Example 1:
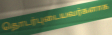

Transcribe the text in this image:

தொடர்புடையவர்களாக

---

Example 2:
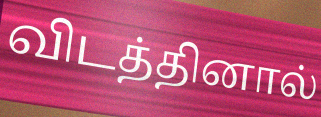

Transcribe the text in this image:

விடத்தினால்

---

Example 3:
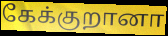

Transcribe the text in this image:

கேக்குறானா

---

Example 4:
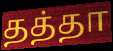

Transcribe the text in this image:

தத்தா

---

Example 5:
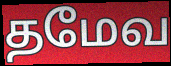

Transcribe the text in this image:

தமேவ